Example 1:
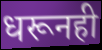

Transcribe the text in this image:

धरूनही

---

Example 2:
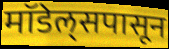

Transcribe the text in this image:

मॉडेल्सपासून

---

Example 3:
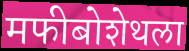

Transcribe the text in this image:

मफीबोशेथला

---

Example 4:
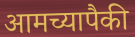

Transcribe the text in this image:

आमच्यापैकी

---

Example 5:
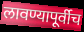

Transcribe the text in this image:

लावण्यापूर्वीच